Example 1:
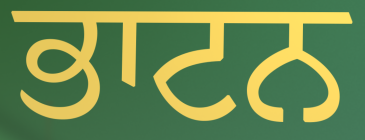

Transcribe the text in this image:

ਭਾਟਨ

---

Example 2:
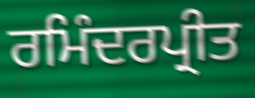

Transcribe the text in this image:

ਰਮਿੰਦਰਪ੍ਰੀਤ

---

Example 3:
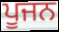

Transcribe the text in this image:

ਪੂਜਨ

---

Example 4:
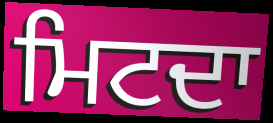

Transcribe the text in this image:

ਮਿਟਦਾ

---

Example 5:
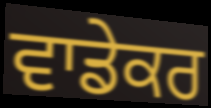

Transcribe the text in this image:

ਵਾਡੇਕਰ